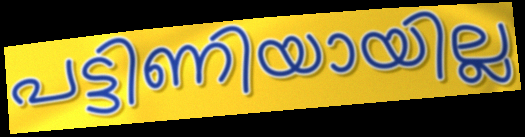
പട്ടിണിയായില്ല